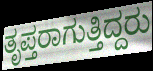
ತೃಪ್ತರಾಗುತ್ತಿದ್ದರು